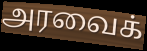
அரவைக்